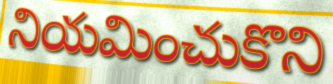
నియమించుకొని